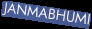
JANMABHUMI